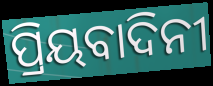
ପ୍ରିୟବାଦିନୀ